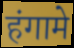
हंगामे